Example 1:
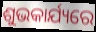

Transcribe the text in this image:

ଶୁଭକାର୍ଯ୍ୟରେ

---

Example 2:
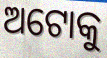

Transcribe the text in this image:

ଅଟୋକୁ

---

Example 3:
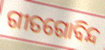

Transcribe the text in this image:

ଗୀତଗୋବିନ୍ଦ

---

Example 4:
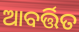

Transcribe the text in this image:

ଆବର୍ତ୍ତିତ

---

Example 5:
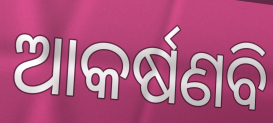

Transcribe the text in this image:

ଆକର୍ଷଣବି